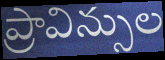
ప్రావిన్సుల